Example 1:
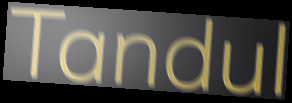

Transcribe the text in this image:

Tandul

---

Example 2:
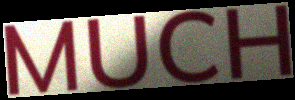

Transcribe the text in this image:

MUCH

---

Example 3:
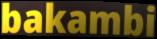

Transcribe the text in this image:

bakambi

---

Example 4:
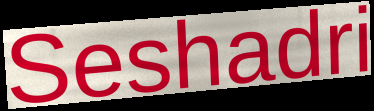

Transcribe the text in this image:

Seshadri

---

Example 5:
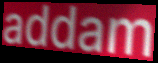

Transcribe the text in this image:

addam